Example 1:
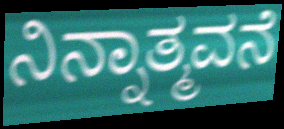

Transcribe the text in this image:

ನಿನ್ನಾತ್ಮವನೆ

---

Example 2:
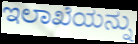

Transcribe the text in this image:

ಇಲಾಖೆಯನ್ನು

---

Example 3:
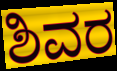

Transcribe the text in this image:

ಶಿವರ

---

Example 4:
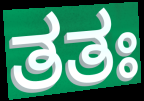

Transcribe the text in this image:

ತತಃ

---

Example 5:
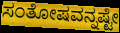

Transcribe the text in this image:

ಸಂತೋಷವನ್ನಷ್ಟೇ